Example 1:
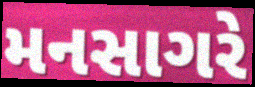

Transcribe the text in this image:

મનસાગરે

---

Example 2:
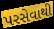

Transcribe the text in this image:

પરસેવાથી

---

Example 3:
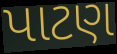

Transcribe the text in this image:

પાટણ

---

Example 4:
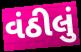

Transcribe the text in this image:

વંઠીલું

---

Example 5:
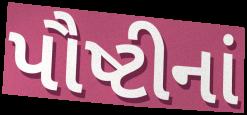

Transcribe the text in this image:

પૌષ્ટીનાં